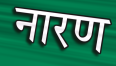
नारण